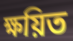
ক্ষয়িত